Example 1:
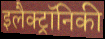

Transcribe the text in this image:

इलैक्ट्रॉनिकी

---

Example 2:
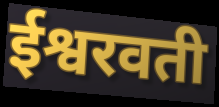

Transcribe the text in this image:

ईश्वरवती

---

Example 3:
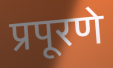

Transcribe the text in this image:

प्रपूरणे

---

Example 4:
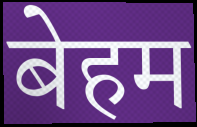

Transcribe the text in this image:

बेहम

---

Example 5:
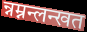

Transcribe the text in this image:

न्नम्नन्लन्खत